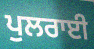
ਪੁਲਰਾਈ